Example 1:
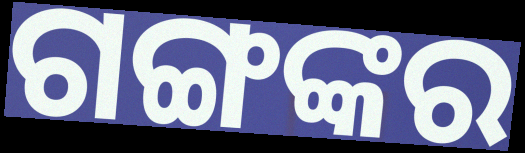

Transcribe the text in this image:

ଗଙ୍ଗଙ୍କର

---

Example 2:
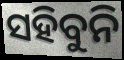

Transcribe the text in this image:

ସହିବୁନି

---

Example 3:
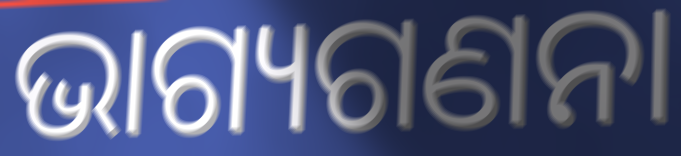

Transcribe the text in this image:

ଭାଗ୍ୟଗଣନା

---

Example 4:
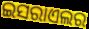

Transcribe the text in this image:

ଇସରାଏଲର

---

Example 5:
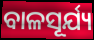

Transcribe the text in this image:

ବାଳସୂର୍ଯ୍ୟ